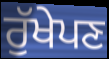
ਰੁੱਖੇਪਣ